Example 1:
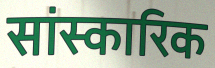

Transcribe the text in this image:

सांस्कारिक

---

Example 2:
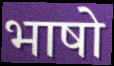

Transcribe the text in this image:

भाषो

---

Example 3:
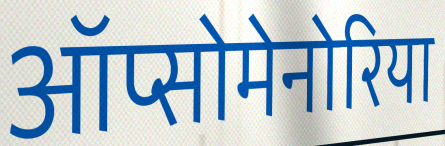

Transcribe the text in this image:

ऑप्सोमेनोरिया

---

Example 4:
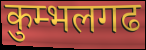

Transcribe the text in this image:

कुम्भलगढ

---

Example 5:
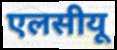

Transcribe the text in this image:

एलसीयू